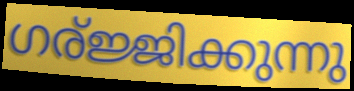
ഗര്ജ്ജിക്കുന്നു